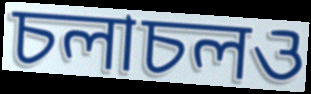
চলাচলও